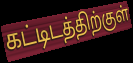
கட்டிடத்திற்குள்